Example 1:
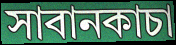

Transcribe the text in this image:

সাবানকাচা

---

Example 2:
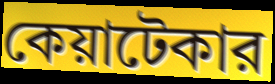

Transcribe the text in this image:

কেয়াটেকার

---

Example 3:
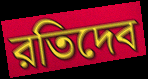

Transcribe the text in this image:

রতিদেব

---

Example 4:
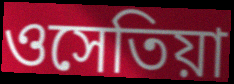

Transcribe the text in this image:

ওসেতিয়া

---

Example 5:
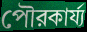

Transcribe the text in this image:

পৌরকার্য্য